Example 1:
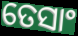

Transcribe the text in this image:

ତେସାଂ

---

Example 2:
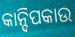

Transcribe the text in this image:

କାନ୍ଦିପକାଉ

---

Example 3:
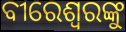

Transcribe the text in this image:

ବୀରେଶ୍ୱରଙ୍କୁ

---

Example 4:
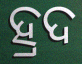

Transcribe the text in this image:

ହ୍ରଦ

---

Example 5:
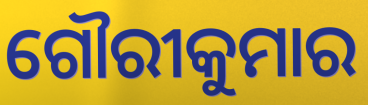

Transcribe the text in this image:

ଗୌରୀକୁମାର